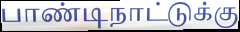
பாண்டிநாட்டுக்கு